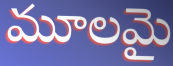
మూలమై